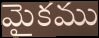
మైకము